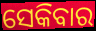
ସେକିବାର